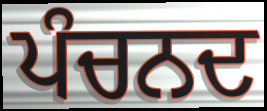
ਪੰਚਨਦ